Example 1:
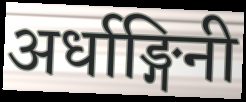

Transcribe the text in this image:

अर्धाङ्गिनी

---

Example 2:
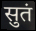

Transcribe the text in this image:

सुतं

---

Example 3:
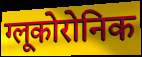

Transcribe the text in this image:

ग्लूकोरोनिक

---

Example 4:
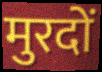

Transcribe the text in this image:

मुरदों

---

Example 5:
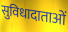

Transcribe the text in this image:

सुविधादाताओं